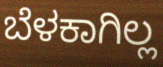
ಬೆಳಕಾಗಿಲ್ಲ